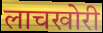
लाचखोरी